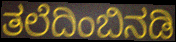
ತಲೆದಿಂಬಿನಡಿ